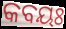
କବୟଃ